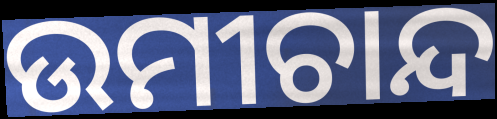
ଉମୀଚାନ୍ଦ